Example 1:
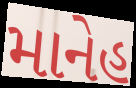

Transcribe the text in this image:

માનેહ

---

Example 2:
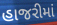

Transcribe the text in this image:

હાજરીમાં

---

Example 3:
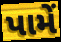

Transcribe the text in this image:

પામેં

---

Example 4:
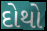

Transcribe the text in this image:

દોથો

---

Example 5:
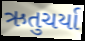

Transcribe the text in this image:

ઋતુચર્યા